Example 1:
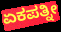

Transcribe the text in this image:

ಏಕಪತ್ನೀ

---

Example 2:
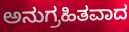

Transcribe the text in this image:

ಅನುಗ್ರಹಿತವಾದ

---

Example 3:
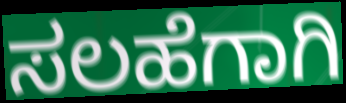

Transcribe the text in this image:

ಸಲಹೆಗಾಗಿ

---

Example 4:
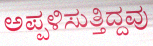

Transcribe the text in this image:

ಅಪ್ಪಳಿಸುತ್ತಿದ್ದವು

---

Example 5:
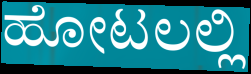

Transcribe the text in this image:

ಹೋಟಲಲ್ಲಿ